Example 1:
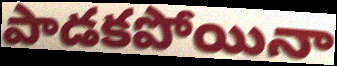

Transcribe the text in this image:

పాడకపోయినా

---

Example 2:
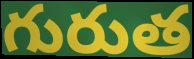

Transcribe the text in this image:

గురుత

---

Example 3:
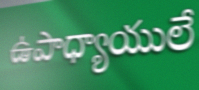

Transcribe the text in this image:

ఉపాధ్యాయులే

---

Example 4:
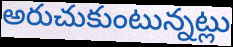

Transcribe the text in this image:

అరుచుకుంటున్నట్లు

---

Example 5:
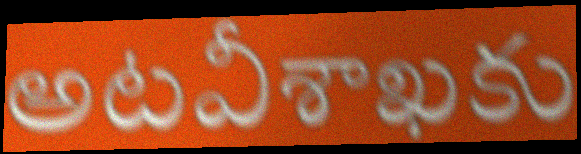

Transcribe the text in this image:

అటవీశాఖకు